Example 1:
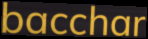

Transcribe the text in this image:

bacchar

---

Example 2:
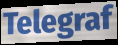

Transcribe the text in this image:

Telegraf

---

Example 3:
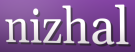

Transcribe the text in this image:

nizhal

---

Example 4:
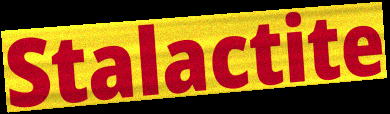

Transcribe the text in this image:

Stalactite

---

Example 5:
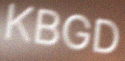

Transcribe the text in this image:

KBGD